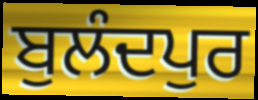
ਬੁਲੰਦਪੁਰ